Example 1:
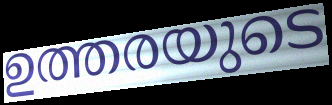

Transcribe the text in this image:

ഉത്തരയുടെ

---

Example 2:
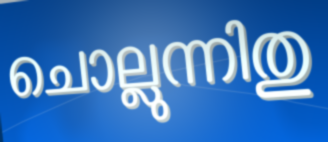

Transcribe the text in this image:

ചൊല്ലുന്നിതു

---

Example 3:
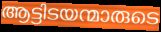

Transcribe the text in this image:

ആട്ടിടയന്മാരുടെ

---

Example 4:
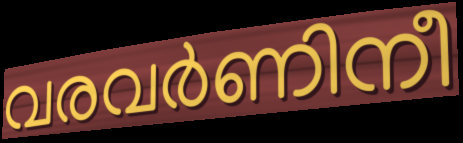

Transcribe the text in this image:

വരവർണിനീ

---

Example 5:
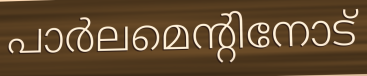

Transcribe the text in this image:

പാർലമെന്റിനോട്